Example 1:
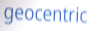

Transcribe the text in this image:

geocentric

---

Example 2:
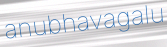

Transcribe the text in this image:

anubhavagalu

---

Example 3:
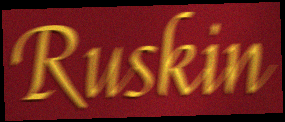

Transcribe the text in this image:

Ruskin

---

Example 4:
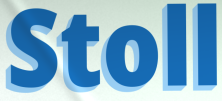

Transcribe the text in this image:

Stoll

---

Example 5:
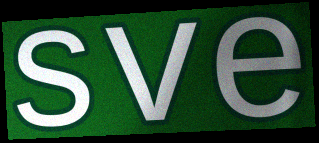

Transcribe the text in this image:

sve